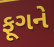
ફૂગને